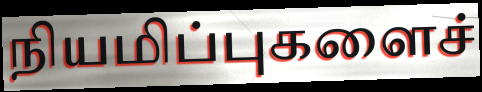
நியமிப்புகளைச்